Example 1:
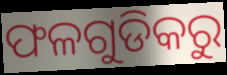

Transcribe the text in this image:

ଫଳଗୁଡିକରୁ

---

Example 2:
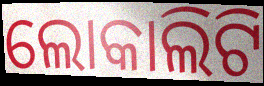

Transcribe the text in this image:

ଲୋକାଲିଟି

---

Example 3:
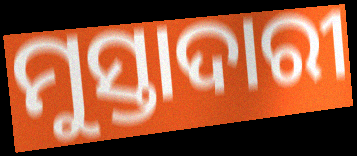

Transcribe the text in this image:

ମୁସ୍ତାଦାରୀ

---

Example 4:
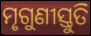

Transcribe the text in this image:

ମୃଗୁଣୀସ୍ତୁତି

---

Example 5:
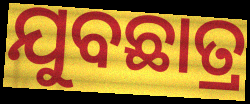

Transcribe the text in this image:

ଯୁବଛାତ୍ର